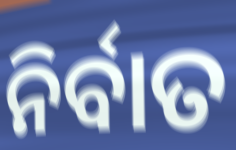
ନିର୍ବାତ